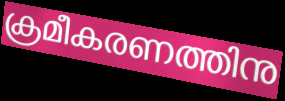
ക്രമീകരണത്തിനു